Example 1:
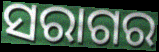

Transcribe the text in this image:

ସରାଗର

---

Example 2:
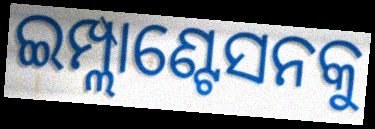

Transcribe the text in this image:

ଇମ୍ପ୍ଲାଣ୍ଟେସନକୁ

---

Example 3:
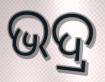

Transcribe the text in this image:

ଭଦ୍ର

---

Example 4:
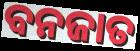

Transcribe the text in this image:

ବନଜାତ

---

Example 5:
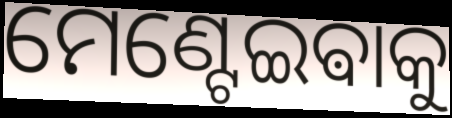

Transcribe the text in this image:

ମେଣ୍ଟେଇଵାକୁ